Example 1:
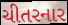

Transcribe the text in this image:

ચીતરનાર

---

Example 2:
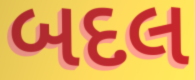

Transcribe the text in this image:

બદલ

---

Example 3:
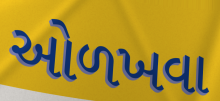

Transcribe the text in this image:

ઓળખવા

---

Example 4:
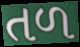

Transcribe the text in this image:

તળ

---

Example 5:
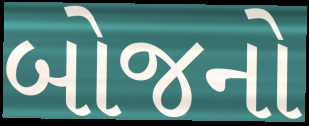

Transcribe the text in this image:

બોજનો